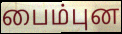
பைம்புன